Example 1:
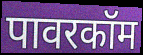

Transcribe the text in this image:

पावरकॉम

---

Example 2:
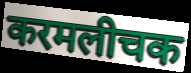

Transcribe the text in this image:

करमलीचक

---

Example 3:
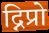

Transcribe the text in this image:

द्निप्रो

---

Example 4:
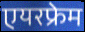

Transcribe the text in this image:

एयरफ्रेम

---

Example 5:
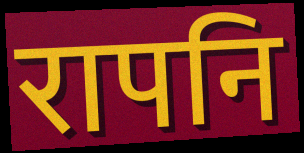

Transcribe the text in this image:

रापनि